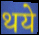
थये